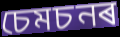
চেমচনৰ